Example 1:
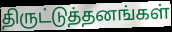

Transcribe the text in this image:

திருட்டுத்தனங்கள்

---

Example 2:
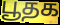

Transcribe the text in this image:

பூதக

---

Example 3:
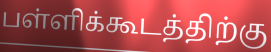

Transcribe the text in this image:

பள்ளிக்கூடத்திற்கு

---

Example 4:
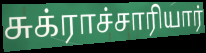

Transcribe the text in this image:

சுக்ராச்சாரியார்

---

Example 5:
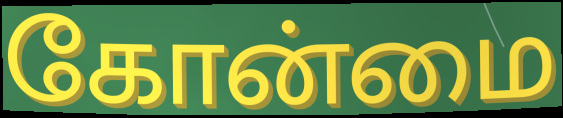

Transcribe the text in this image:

கோன்மை